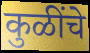
कुळींचे